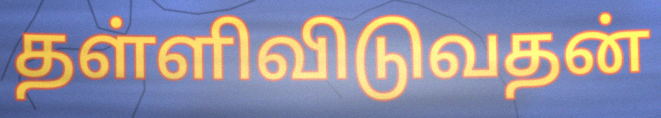
தள்ளிவிடுவதன்